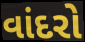
વાંદરો